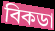
বিকডা